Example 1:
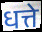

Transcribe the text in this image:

धत्ते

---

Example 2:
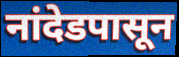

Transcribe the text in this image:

नांदेडपासून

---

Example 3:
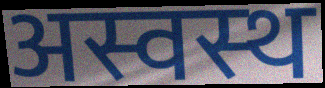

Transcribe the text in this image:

अस्वस्थ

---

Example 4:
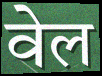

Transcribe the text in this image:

वेल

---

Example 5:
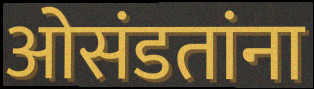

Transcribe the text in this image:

ओसंडतांना